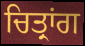
ਚਿਤ੍ਰਾਂਗ